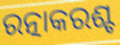
ରତ୍ନାକରଶ୍ଚ